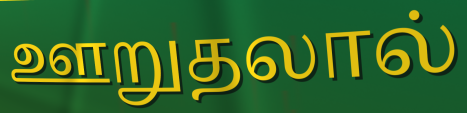
ஊறுதலால்